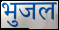
भुजल